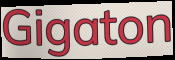
Gigaton